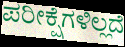
ಪರೀಕ್ಷೆಗಳಿಲ್ಲದೆ